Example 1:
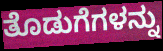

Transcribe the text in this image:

ತೊಡುಗೆಗಳನ್ನು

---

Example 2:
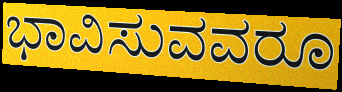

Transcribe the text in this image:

ಭಾವಿಸುವವರೂ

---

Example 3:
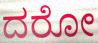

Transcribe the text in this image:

ದರೋ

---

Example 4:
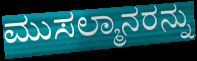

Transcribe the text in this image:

ಮುಸಲ್ಮಾನರನ್ನು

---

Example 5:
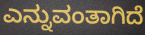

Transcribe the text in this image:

ಎನ್ನುವಂತಾಗಿದೆ